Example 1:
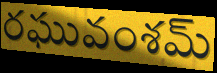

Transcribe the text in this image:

రఘువంశమ్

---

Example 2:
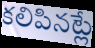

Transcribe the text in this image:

కలిపినట్లే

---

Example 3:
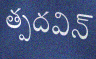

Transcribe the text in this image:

త్పదవిన్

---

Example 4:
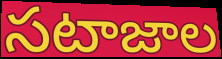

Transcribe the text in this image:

సటాజాల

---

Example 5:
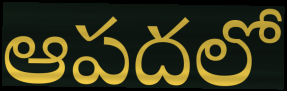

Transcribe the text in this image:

ఆపదలో